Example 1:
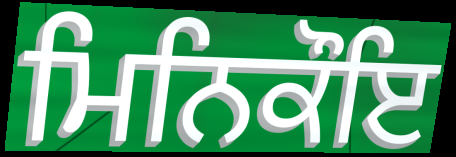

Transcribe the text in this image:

ਮਿਨਿਕੌਇ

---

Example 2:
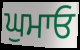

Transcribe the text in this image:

ਘੁਮਾਓ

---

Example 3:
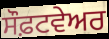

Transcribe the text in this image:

ਸੌਫ਼ਟਵੇਅਰ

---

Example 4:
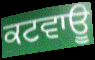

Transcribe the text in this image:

ਕਟਵਾਊ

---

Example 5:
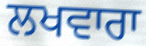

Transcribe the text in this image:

ਲਖਵਾਰਾ